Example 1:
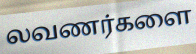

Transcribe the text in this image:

லவணர்களை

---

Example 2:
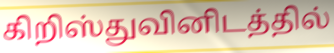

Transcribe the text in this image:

கிறிஸ்துவினிடத்தில்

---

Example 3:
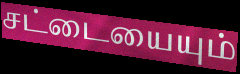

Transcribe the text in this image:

சட்டையையும்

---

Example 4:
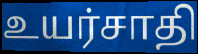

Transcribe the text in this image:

உயர்சாதி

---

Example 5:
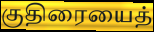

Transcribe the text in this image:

குதிரையைத்